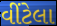
વીંટેલા